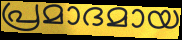
പ്രമാദമായ